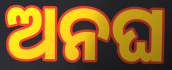
ଅନଘ